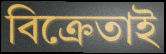
বিক্ৰেতাই